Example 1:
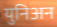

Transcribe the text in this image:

युनिअन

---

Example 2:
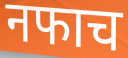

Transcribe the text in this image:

नफाच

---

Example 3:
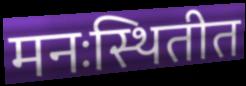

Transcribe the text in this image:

मनःस्थितीत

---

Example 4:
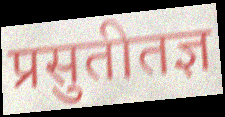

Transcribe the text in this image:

प्रसुतीतज्ञ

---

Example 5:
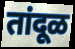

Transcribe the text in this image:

तांदूळ